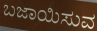
ಬಜಾಯಿಸುವ